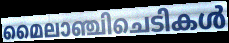
മൈലാഞ്ചിചെടികൾ